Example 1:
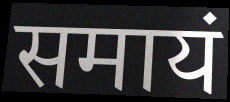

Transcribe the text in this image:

समायं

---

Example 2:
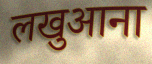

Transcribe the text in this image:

लखुआना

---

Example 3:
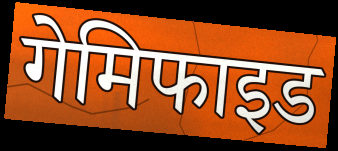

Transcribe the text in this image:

गेमिफाइड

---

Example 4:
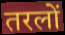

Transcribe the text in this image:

तरलों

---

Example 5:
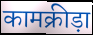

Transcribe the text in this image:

कामक्रीड़ा